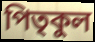
পিতৃকুল